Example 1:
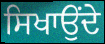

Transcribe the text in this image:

ਸਿਖਾਉਂਦੇ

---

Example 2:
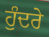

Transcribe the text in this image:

ਹੁੰਦਰੇ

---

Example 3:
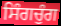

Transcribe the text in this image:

ਸਿੰਗਚੁੰਗ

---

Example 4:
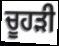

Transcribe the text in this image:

ਚੂਹੜੀ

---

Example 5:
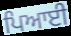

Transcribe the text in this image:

ਪਿਆਈ